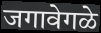
जगावेगळे